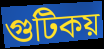
গুটিকয়